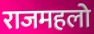
राजमहलो